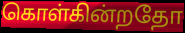
கொள்கின்றதோ